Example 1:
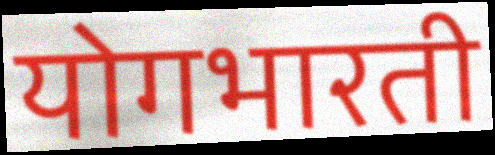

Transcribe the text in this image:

योगभारती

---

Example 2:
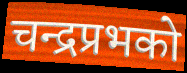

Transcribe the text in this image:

चन्द्रप्रभको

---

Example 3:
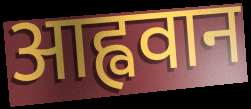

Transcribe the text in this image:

आह्ववान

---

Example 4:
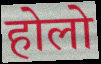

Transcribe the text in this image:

होलो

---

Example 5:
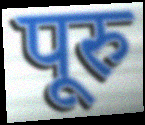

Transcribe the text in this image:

पूरु